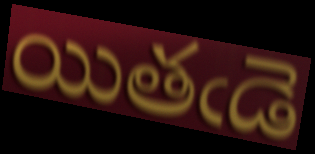
యితఁడె